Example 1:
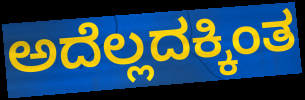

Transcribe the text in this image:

ಅದೆಲ್ಲದಕ್ಕಿಂತ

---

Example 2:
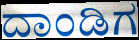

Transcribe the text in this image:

ದಾಂಡಿಗ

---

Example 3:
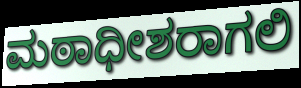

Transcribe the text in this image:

ಮಠಾಧೀಶರಾಗಲಿ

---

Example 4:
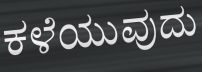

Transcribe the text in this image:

ಕಳೆಯುವುದು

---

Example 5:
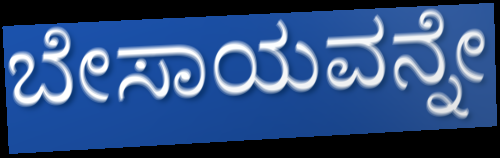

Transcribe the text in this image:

ಬೇಸಾಯವನ್ನೇ